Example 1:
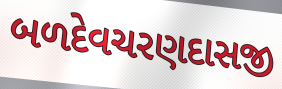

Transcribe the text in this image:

બળદેવચરણદાસજી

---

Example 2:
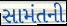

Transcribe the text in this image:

સામંતની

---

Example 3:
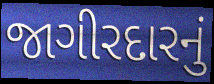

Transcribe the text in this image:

જાગીરદારનું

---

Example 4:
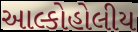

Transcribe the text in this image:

આલ્કોહોલીય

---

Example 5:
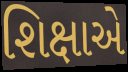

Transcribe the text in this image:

શિક્ષાએ